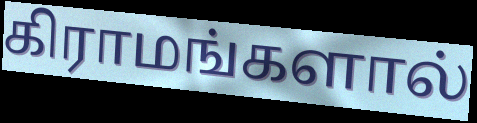
கிராமங்களால்